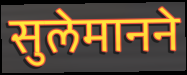
सुलेमानने